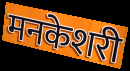
मनकेशरी